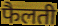
फैलती